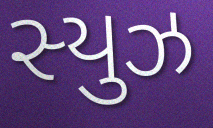
સ્યુઝ